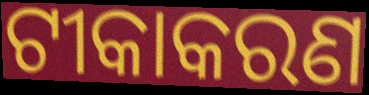
ଟୀକାକରଣ